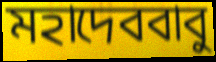
মহাদেববাবু